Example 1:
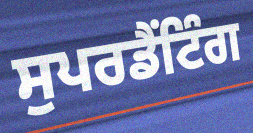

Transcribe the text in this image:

ਸੁਪਰਡੈਂਟਿੰਗ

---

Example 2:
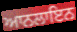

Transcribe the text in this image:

ਆਨਲਾਇਨ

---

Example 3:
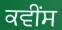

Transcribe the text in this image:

ਕਵੀਂਸ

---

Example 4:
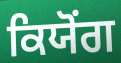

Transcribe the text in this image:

ਕਿਯੋਂਗ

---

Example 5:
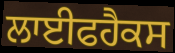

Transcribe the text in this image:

ਲਾਈਫਹੈਕਸ